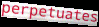
perpetuates